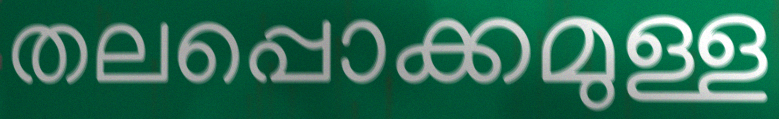
തലപ്പൊക്കമുള്ള